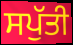
ਸਪੁੱਤੀ